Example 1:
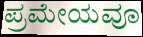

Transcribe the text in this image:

ಪ್ರಮೇಯವೂ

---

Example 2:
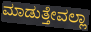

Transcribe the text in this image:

ಮಾಡುತ್ತೇವಲ್ಲಾ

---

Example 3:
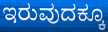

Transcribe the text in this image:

ಇರುವುದಕ್ಕೂ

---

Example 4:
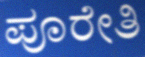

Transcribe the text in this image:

ಪೂರೇತಿ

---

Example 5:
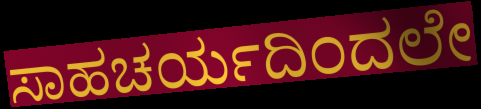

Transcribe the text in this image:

ಸಾಹಚರ್ಯದಿಂದಲೇ